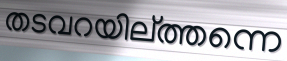
തടവറയില്ത്തന്നെ